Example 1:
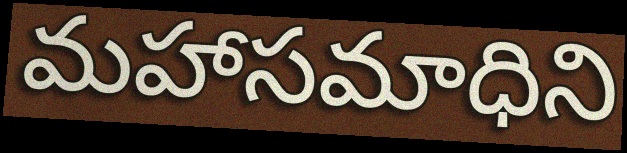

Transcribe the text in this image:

మహాసమాధిని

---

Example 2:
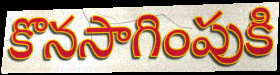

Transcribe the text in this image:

కొనసాగింపుకి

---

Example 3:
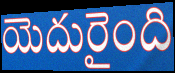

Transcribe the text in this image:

యెదురైంది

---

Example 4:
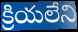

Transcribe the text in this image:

క్రియలేని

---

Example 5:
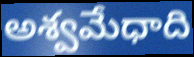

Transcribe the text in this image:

అశ్వమేధాది